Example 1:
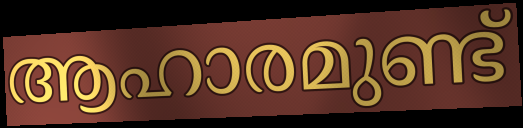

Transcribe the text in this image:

ആഹാരമുണ്ട്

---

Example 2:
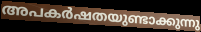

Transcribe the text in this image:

അപകർഷതയുണ്ടാക്കുന്നു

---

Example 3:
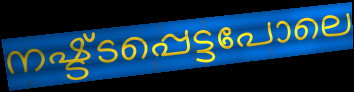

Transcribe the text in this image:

നഷ്ട്ടപ്പെട്ടപോലെ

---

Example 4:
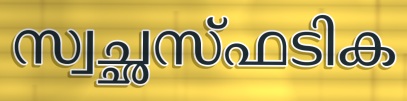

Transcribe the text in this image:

സ്വച്ഛസ്ഫടിക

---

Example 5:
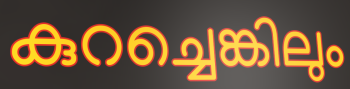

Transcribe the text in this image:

കുറച്ചെങ്കിലും